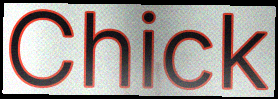
Chick